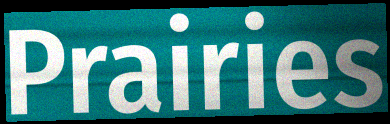
Prairies